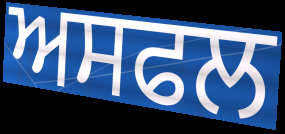
ਅਸਫਲ